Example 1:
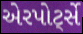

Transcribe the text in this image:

એરપોર્ટ્સે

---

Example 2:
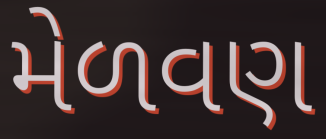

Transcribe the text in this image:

મેળવણ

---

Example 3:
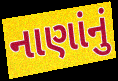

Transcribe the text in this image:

નાણાંનું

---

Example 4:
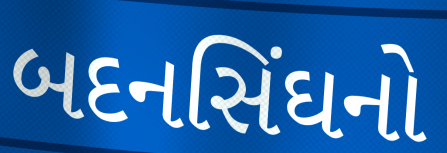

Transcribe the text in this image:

બદનસિંઘનો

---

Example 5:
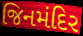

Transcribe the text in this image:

જિનમંદિર